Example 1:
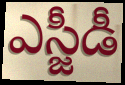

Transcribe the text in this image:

ఎస్జీడీ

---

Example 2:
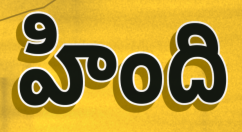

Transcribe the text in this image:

హింది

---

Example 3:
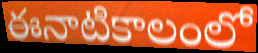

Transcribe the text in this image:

ఈనాటికాలంలో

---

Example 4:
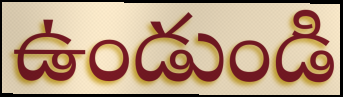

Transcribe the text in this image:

ఉండుండి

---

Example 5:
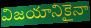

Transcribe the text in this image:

విజయానికైనా